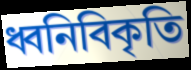
ধ্বনিবিকৃতি